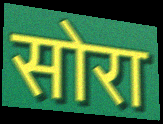
सोरा